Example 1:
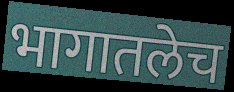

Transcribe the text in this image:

भागातलेच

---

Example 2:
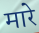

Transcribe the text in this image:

मारे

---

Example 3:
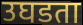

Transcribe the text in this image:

उघडता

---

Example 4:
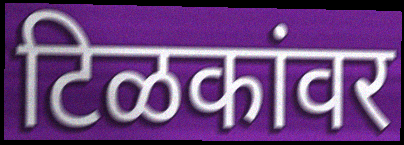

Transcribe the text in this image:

टिळकांवर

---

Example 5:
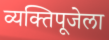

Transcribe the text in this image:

व्यक्तिपूजेला